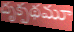
దృక్పథమూ